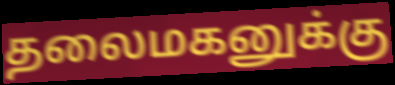
தலைமகனுக்கு